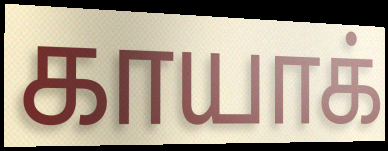
காயாக்